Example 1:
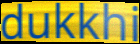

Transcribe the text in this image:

dukkhi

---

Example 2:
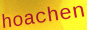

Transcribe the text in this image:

hoachen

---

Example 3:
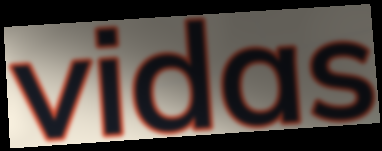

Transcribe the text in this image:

vidas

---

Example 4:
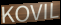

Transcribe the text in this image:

KOVIL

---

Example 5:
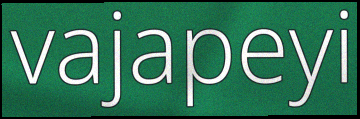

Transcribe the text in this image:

vajapeyi